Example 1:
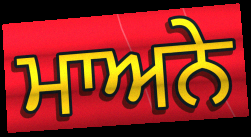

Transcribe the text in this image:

ਮਾਅਨੇ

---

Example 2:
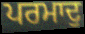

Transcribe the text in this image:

ਪਰਮਾਦੁ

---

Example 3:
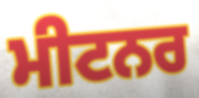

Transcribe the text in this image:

ਮੀਟਨਰ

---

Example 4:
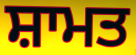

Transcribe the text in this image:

ਸ਼ਾਮਤ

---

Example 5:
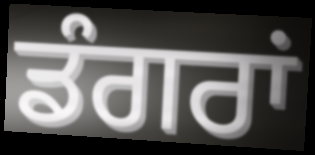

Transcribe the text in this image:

ਡੰਗਰਾਂ